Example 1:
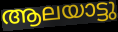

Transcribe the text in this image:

ആലയാട്ടു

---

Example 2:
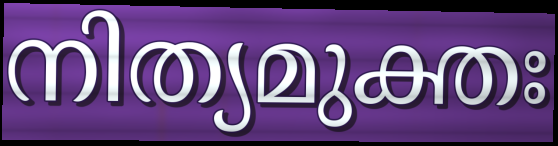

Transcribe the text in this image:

നിത്യമുക്തഃ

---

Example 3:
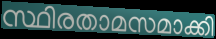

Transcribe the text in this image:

സ്ഥിരതാമസമാക്കി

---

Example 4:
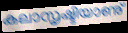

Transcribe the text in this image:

കലാസൃഷ്ടിയാണു്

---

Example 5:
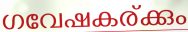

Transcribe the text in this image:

ഗവേഷകര്ക്കും